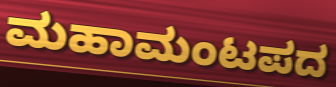
ಮಹಾಮಂಟಪದ